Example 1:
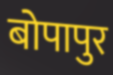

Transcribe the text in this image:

बोपापुर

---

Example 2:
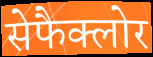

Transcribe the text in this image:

सेफैक्लोर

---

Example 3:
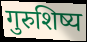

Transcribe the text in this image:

गुरुशिष्य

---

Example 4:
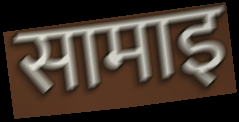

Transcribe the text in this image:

सामाइ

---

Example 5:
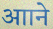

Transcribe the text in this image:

आाने